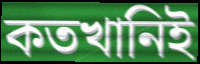
কতখানিই